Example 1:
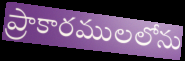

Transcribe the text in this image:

ప్రాకారములలోను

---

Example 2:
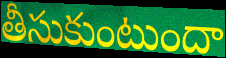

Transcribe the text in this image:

తీసుకుంటుందా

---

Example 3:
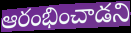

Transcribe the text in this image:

ఆరంభించాడని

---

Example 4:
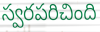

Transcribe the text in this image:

స్వరపరిచింది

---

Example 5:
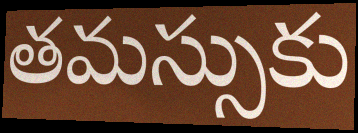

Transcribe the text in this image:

తమస్సుకు